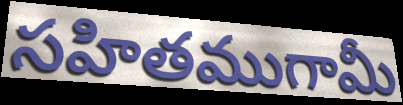
సహితముగామీ